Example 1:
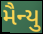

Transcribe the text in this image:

મૈન્યુ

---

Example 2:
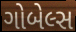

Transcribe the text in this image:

ગોબેલ્સ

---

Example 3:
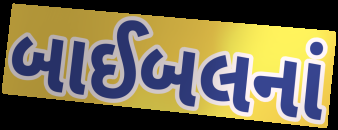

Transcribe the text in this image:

બાઈબલનાં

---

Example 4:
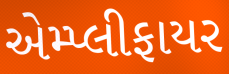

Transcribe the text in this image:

એમ્પ્લીફાયર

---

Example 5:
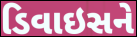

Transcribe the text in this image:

ડિવાઇસને